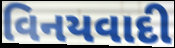
વિનયવાદી